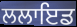
ਲਲਾਇਡ